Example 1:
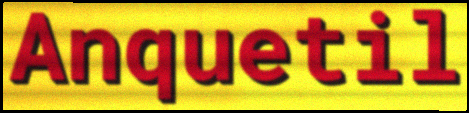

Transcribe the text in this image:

Anquetil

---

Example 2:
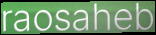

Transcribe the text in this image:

raosaheb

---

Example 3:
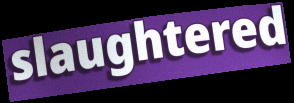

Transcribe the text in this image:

slaughtered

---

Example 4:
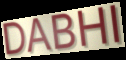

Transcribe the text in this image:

DABHI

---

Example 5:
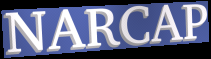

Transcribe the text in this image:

NARCAP